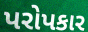
પરોપકાર